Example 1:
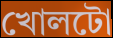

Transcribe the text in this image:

খোলটো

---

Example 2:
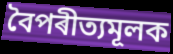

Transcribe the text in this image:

বৈপৰীত্যমূলক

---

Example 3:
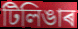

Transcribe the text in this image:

টিলিঙাৰ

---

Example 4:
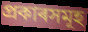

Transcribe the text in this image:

প্ৰকাৰসমূহ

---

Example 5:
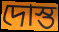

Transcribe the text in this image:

দোস্ত